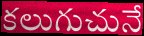
కలుగుచునే